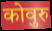
कोवुरु